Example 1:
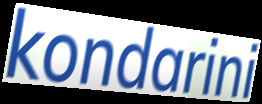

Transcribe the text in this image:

kondarini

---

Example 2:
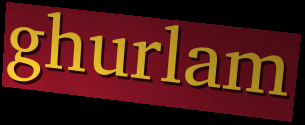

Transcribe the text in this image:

ghurlam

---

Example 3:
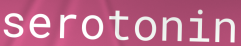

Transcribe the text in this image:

serotonin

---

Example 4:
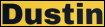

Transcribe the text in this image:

Dustin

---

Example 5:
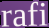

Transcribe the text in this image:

rafi